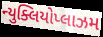
ન્યુક્લિયોપ્લાઝમ